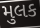
મુલક